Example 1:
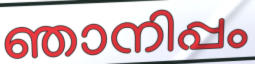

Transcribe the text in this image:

ഞാനിപ്പം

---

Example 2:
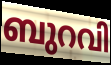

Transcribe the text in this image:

ബുറവി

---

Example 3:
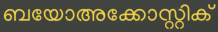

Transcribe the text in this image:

ബയോഅക്കോസ്റ്റിക്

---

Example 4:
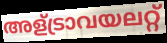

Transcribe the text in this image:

അള്ട്രാവയലറ്റ്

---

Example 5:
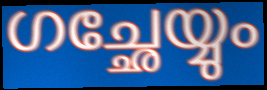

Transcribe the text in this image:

ഗച്ഛേയ്യും